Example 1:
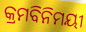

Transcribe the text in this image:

କ୍ରମବିନିମୟୀ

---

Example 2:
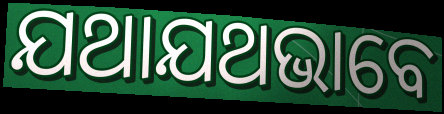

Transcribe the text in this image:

ଯଥାଯଥଭାବେ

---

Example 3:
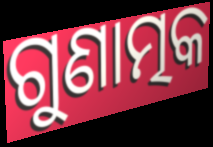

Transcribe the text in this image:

ଗୁଣାତ୍ମକ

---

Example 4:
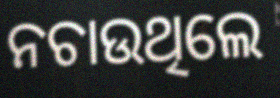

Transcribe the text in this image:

ନଚାଉଥିଲେ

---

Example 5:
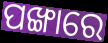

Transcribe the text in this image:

ପଙ୍ଖାରେ